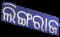
ଲିଙ୍ଗରାଜ